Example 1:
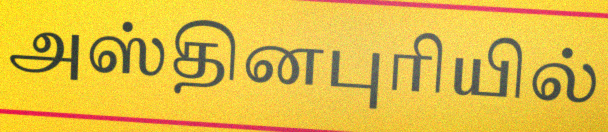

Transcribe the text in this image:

அஸ்தினபுரியில்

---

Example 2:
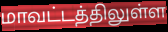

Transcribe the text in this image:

மாவட்டத்திலுள்ள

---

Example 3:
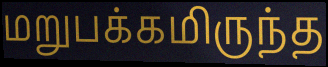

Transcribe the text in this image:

மறுபக்கமிருந்த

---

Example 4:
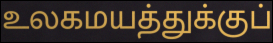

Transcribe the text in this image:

உலகமயத்துக்குப்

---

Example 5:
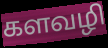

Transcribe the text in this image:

களவழி